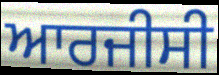
ਆਰਜੀਸੀ